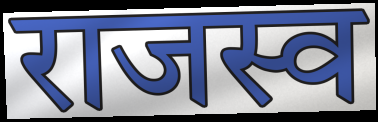
राजस्‍व